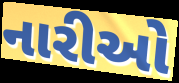
નારીઓ